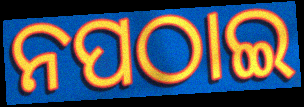
ନପଠାଇ